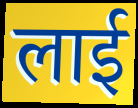
लाई